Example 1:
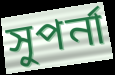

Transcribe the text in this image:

সুপর্না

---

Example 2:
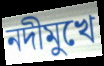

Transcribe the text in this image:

নদীমুখে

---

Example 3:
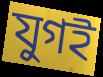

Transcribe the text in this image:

যুগই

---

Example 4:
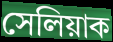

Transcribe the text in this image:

সেলিয়াক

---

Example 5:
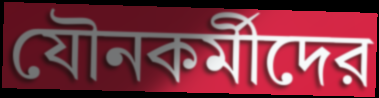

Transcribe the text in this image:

যৌনকর্মীদের